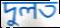
দুলত